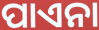
ପାଏନା